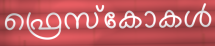
ഫ്രെസ്കോകൾ